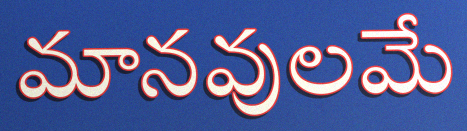
మానవులమే